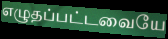
எழுதப்பட்டவையே